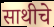
साथीचे